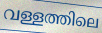
വള്ളത്തിലെ